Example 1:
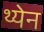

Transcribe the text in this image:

थ्येन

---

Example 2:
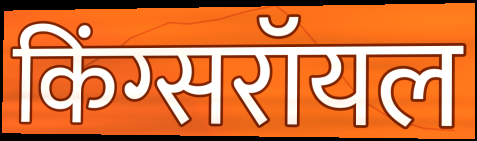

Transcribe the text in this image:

किंग्सरॉयल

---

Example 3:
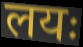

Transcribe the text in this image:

लयः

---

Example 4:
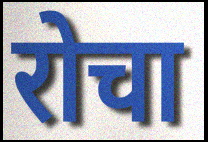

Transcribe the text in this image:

रोचा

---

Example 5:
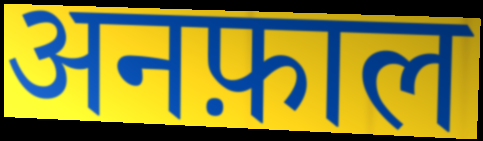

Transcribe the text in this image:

अनफ़ाल